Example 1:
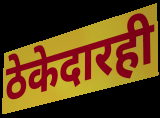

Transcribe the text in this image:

ठेकेदारही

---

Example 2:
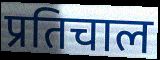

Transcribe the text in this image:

प्रतिचाल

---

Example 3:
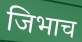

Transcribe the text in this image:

जिभाच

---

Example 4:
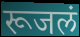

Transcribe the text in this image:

रूजलं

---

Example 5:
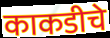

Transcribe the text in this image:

काकडीचे